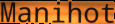
Manihot